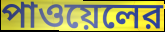
পাওয়েলের